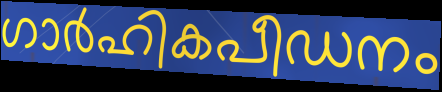
ഗാർഹികപീഡനം